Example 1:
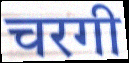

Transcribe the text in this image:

चरगी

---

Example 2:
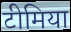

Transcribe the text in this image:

टीमिया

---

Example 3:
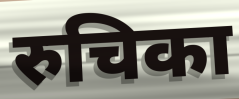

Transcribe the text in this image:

रुचिका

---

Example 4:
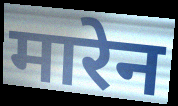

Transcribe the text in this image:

मारेन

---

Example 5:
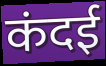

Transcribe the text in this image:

कंदई